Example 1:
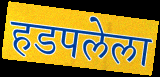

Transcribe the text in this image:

हडपलेला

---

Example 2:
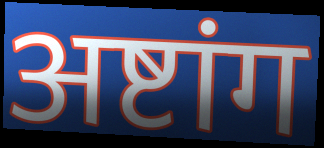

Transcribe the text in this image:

अष्टांग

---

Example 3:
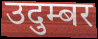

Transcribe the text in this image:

उदुम्बर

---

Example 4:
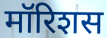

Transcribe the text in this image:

मॉरिशस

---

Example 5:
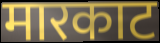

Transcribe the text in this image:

मारकाट